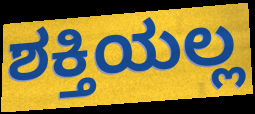
ಶಕ್ತಿಯಲ್ಲ